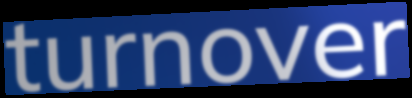
turnover